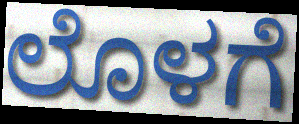
ಲೊಳಗೆ